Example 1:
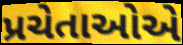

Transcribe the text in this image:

પ્રચેતાઓએ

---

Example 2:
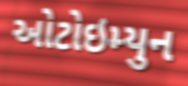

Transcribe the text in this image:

ઓટોઇમ્યુન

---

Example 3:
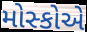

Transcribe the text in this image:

મોસ્કોએ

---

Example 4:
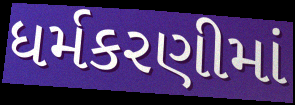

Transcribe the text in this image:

ધર્મકરણીમાં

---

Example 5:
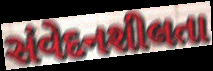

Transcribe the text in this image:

સંવેદનશીલતા